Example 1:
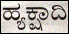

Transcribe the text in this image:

ಹ್ಯಕ್ಷಾದಿ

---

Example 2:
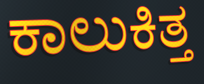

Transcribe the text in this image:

ಕಾಲುಕಿತ್ತ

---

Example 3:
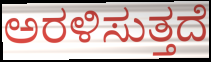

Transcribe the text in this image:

ಅರಳಿಸುತ್ತದೆ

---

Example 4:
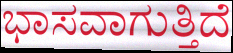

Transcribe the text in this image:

ಭಾಸವಾಗುತ್ತಿದೆ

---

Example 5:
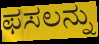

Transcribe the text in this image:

ಫಸಲನ್ನು